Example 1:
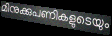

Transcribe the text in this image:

മിനുക്കുപണികളുടെയും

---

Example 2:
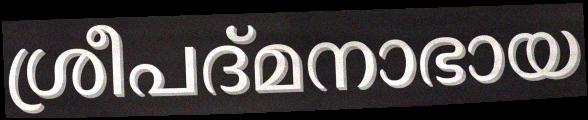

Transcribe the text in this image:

ശ്രീപദ്മനാഭായ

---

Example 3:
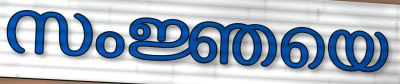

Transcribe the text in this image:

സംജ്ഞയെ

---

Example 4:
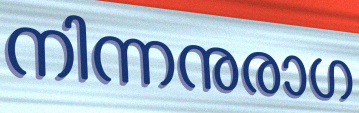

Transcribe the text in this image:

നിന്നനുരാഗ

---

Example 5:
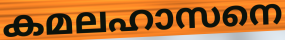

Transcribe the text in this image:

കമലഹാസനെ